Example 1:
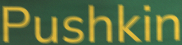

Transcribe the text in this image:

Pushkin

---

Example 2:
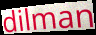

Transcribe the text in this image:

dilman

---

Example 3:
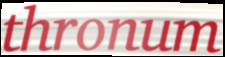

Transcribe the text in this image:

thronum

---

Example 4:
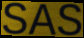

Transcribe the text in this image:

SAS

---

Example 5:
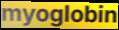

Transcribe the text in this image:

myoglobin